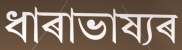
ধাৰাভাষ্যৰ